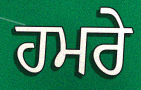
ਹਮਰੇ